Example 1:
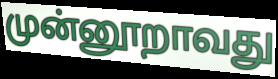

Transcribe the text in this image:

முன்னூறாவது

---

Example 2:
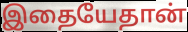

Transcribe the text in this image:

இதையேதான்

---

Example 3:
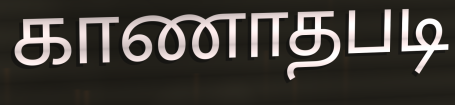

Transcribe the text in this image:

காணாதபடி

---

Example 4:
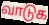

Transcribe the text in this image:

வாடுக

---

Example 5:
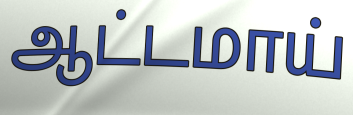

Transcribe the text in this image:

ஆட்டமாய்